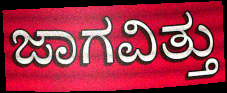
ಜಾಗವಿತ್ತು